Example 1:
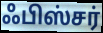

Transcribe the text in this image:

ஃபிஸ்சர்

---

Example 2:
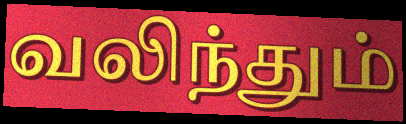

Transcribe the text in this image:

வலிந்தும்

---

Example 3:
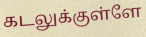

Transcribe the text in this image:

கடலுக்குள்ளே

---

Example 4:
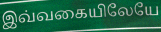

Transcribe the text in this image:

இவ்வகையிலேயே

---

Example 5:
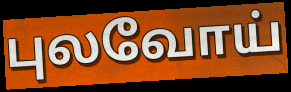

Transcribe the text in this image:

புலவோய்